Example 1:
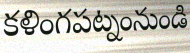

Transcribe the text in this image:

కళింగపట్నంనుండి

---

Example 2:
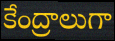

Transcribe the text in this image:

కేంద్రాలుగా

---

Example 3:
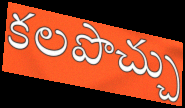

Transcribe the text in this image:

కలపొచ్చు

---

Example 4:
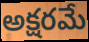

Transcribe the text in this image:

అక్షరమే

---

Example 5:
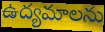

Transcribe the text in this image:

ఉద్యమాలను